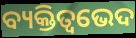
ବ୍ୟକ୍ତିତ୍ୱଭେଦ